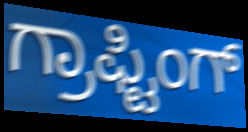
ಗ್ರಾಫ್ಟಿಂಗ್